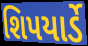
શિપયાર્ડે